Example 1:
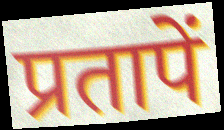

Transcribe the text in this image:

प्रतापें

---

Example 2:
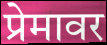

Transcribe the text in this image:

प्रेमावर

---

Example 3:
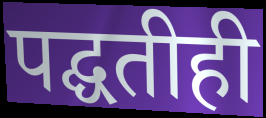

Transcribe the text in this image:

पद्घतीही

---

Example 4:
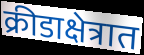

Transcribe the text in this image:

क्रीडाक्षेत्रात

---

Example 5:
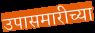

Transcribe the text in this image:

उपासमारीच्या